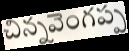
చిన్నవెంగప్ప